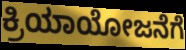
ಕ್ರಿಯಾಯೋಜನೆಗೆ